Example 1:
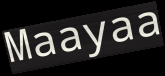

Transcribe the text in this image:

Maayaa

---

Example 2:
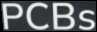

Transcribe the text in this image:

PCBs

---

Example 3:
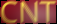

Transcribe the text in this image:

CNT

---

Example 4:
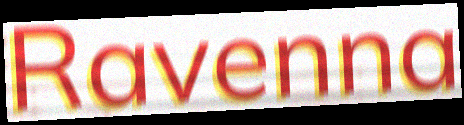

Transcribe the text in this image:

Ravenna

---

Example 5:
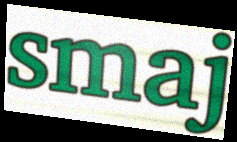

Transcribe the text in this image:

smaj